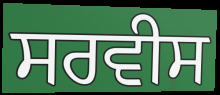
ਸਰਵੀਸ